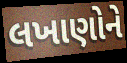
લખાણોને